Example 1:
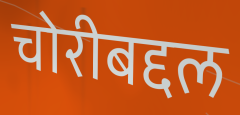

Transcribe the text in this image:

चोरीबद्दल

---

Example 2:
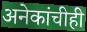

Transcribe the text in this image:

अनेकांचीही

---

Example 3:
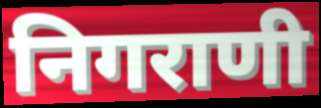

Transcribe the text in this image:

निगराणी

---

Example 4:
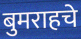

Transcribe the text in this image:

बुमराहचे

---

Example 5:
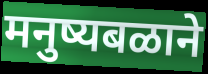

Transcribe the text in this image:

मनुष्यबळाने